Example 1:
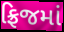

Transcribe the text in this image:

ફ્રિજમાં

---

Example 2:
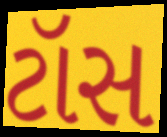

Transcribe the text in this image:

ટૉસ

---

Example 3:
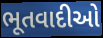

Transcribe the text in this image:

ભૂતવાદીઓ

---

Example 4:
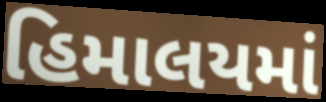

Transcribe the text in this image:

હિમાલયમાં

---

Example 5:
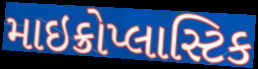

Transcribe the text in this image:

માઇક્રોપ્લાસ્ટિક